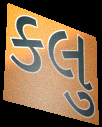
કલુ